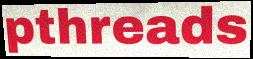
pthreads